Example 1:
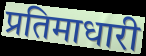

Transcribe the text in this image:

प्रतिमाधारी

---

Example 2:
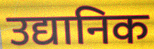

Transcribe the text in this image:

उद्यानिक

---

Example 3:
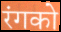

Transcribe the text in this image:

रंगको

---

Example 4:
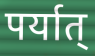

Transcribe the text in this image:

पर्यात्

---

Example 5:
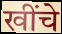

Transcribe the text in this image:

खींचे